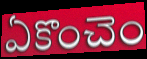
ఏకొంచెం